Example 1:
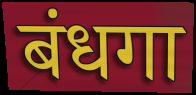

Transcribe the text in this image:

बंधगा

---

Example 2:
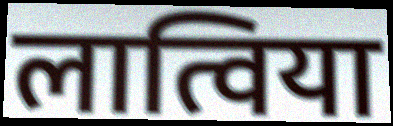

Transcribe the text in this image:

लात्विया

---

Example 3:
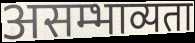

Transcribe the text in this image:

असम्भाव्यता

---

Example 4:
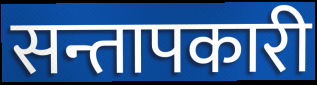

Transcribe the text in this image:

सन्तापकारी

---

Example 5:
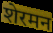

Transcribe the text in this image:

शेरमन